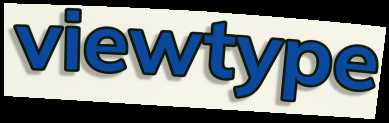
viewtype